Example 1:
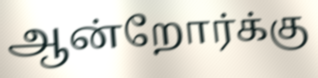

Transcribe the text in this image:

ஆன்றோர்க்கு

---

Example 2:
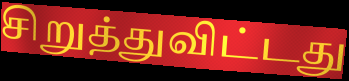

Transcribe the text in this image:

சிறுத்துவிட்டது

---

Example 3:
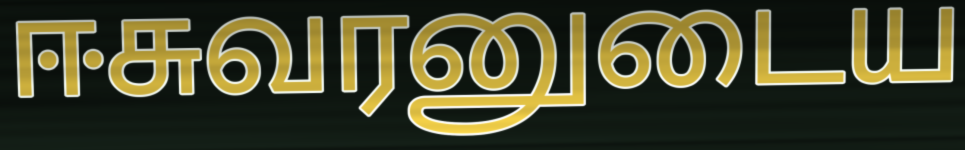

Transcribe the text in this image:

ஈசுவரனுடைய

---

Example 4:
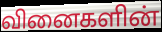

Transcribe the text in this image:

வினைகளின்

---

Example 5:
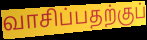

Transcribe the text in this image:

வாசிப்பதற்குப்